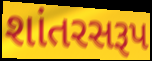
શાંતરસરૂપ